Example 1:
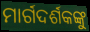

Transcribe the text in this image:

ମାର୍ଗଦର୍ଶକଙ୍କୁ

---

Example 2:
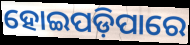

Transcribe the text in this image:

ହୋଇପଡ଼ିପାରେ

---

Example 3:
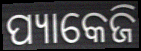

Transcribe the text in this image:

ପ୍ୟାକେଜି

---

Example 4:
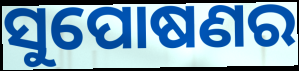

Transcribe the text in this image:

ସୁପୋଷଣର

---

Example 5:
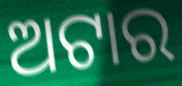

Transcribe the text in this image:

ଅଟାର